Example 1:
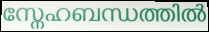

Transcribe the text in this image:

സ്നേഹബന്ധത്തിൽ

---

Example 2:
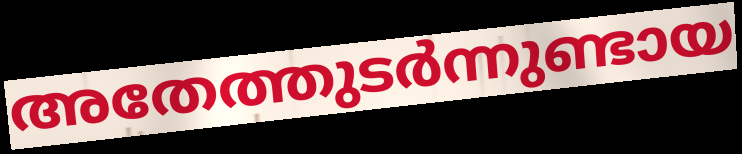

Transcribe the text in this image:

അതേത്തുടർന്നുണ്ടായ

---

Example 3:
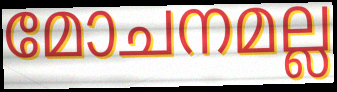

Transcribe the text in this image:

മോചനമല്ല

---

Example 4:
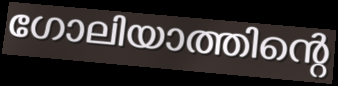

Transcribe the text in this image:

ഗോലിയാത്തിന്റെ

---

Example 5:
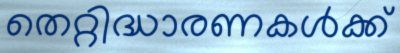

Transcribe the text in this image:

തെറ്റിദ്ധാരണകൾക്ക്